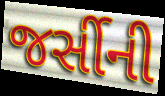
જર્સીની